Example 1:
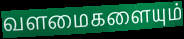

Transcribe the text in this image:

வளமைகளையும்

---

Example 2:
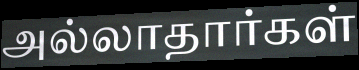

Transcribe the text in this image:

அல்லாதார்கள்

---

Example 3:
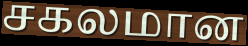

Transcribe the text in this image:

சகலமான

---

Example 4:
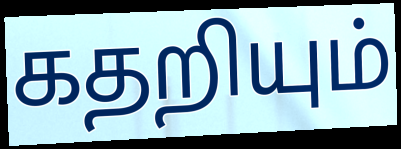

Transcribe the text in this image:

கதறியும்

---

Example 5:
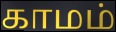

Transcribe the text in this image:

காமம்